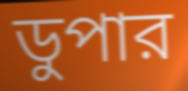
ডুপার